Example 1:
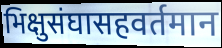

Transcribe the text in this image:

भिक्षुसंघासहवर्तमान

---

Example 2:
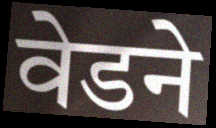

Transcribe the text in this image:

वेडने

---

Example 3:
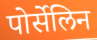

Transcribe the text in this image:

पोर्सेलिन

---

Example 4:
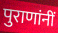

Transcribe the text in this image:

पुराणांनीं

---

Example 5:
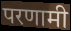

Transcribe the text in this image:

परणामी